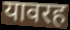
यावरह